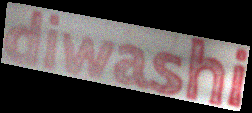
diwashi